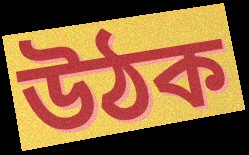
উঠক